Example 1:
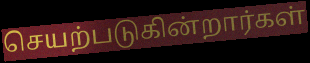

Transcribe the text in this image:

செயற்படுகின்றார்கள்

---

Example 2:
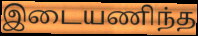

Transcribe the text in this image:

இடையணிந்த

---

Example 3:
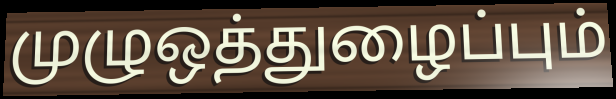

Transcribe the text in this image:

முழுஒத்துழைப்பும்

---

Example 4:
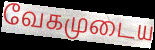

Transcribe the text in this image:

வேகமுடைய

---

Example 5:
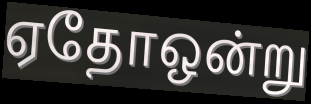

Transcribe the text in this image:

ஏதோஒன்று